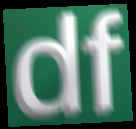
df